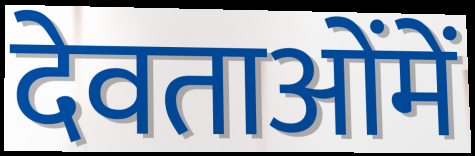
देवताओंमें